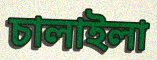
চালাইলা